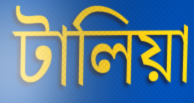
টালিয়া